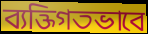
ব্যক্তিগতভাবে